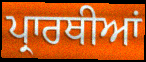
ਪ੍ਰਾਰਥੀਆਂ